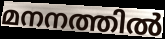
മനനത്തിൽ